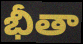
భీతా